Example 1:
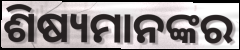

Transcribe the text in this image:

ଶିଷ୍ୟମାନଙ୍କର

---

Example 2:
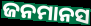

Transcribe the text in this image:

ଜନମାନସ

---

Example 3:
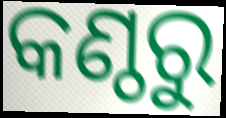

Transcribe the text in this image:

କଣ୍ଠରୁ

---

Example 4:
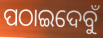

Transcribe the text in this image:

ପଠାଇଦେବୁଁ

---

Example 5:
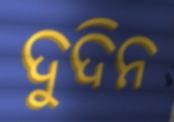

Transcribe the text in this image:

ଦୁଦିନ